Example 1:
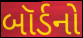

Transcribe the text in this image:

બૉર્ડનો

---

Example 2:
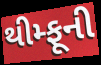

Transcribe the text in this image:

થીમ્ફૂની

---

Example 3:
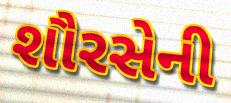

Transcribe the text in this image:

શૌરસેની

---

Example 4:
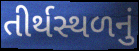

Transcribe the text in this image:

તીર્થસ્થળનું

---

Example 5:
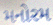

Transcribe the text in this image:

મનોરમ